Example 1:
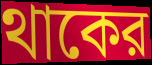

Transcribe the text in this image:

থাকের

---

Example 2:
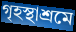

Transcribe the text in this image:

গৃহস্থাশ্রমে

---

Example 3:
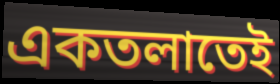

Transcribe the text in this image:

একতলাতেই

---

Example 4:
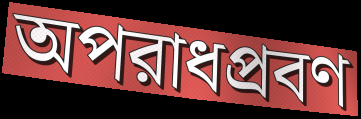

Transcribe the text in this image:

অপরাধপ্রবণ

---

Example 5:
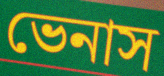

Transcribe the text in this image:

ভেনাস